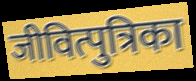
जीवित्पुत्रिका